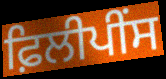
ਫ਼ਿਲੀਪੀਂਸ